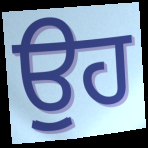
ਉੁਹ